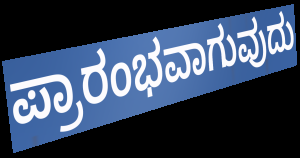
ಪ್ರಾರಂಭವಾಗುವುದು